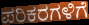
ಪರಿಕರಗಳಿಗೆ